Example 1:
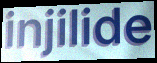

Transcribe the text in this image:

injilide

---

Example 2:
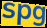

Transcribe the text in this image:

spg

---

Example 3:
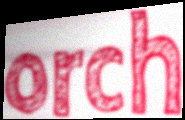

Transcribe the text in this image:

orch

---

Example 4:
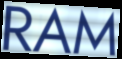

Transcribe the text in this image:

RAM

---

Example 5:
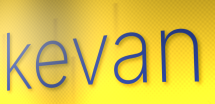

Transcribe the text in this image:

kevan